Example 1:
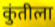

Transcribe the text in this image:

कुंतीला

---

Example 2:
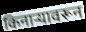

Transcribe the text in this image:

किनाऱ्यावरून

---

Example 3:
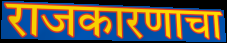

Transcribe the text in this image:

राजकारणाचा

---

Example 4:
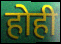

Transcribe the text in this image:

होही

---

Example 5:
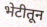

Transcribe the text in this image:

भेटीतून